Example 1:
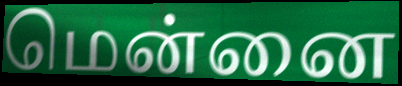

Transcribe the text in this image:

மென்னை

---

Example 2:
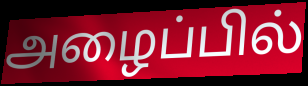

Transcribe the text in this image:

அழைப்பில்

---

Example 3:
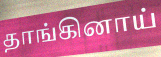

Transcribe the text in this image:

தாங்கினாய்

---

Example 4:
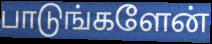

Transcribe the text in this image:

பாடுங்களேன்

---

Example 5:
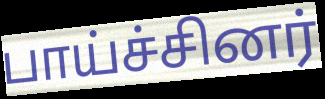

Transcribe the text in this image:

பாய்ச்சினர்